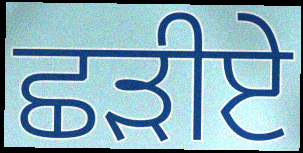
ਛੜੀਏ